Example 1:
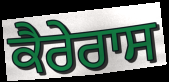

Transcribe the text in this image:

ਕੈਰੇਰਾਸ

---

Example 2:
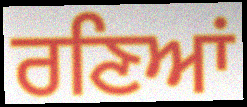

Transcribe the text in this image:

ਰਣਿਆਂ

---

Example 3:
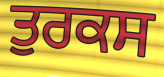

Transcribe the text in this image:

ਤੁਰਕਸ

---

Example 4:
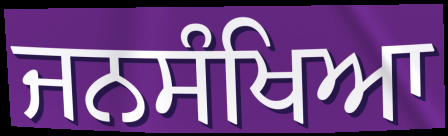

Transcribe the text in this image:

ਜਨਸੰਖਿਆ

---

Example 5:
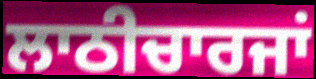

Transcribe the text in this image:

ਲਾਠੀਚਾਰਜਾਂ